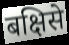
बक्षिसे